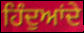
ਹਿੰਦੁਆਂਦੇ